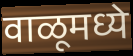
वाळूमध्ये